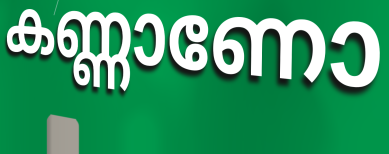
കണ്ണാണോ